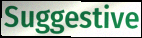
Suggestive